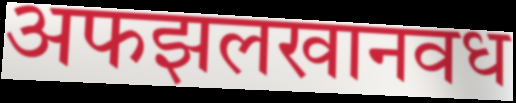
अफझलखानवध